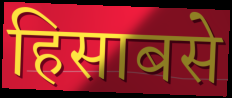
हिसाबसे